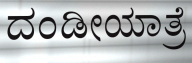
ದಂಡೀಯಾತ್ರೆ